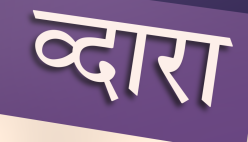
व्दारा